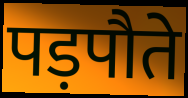
पड़पौते